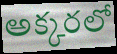
అక్కరలో